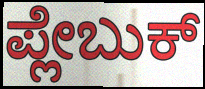
ಪ್ಲೇಬುಕ್